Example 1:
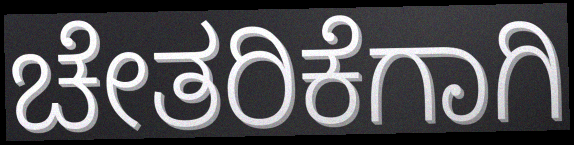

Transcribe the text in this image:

ಚೇತರಿಕೆಗಾಗಿ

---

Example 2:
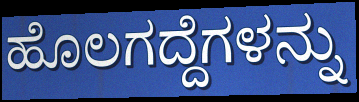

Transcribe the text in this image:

ಹೊಲಗದ್ದೆಗಳನ್ನು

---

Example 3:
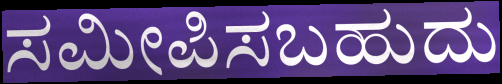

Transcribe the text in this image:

ಸಮೀಪಿಸಬಹುದು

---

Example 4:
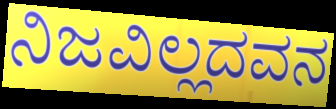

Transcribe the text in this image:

ನಿಜವಿಲ್ಲದವನ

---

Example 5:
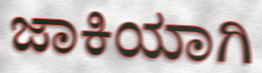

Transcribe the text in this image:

ಜಾಕಿಯಾಗಿ